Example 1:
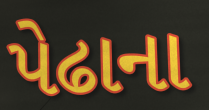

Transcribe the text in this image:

પેઢાના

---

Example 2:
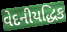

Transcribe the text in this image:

વેદનીયદ્ધિક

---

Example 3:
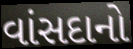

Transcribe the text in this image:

વાંસદાનો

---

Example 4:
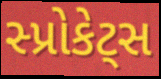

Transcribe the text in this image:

સ્પ્રોકેટ્સ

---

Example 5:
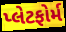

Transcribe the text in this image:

પ્લેટફોર્મ